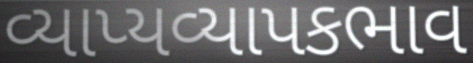
વ્યાપ્યવ્યાપકભાવ